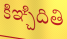
కిఞ్చిదితి